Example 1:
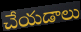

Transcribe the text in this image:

చేయడాలు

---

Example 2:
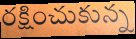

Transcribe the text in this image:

రక్షించుకున్న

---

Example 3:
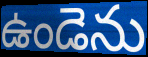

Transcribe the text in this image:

ఉండెను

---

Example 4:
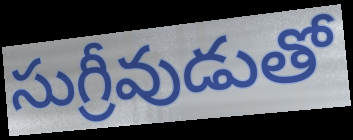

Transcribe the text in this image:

సుగ్రీవుడుతో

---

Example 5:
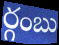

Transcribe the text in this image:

ర్గంబు